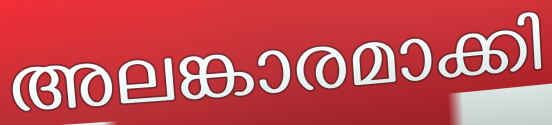
അലങ്കാരമാക്കി